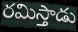
రమిస్తాడు